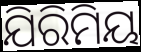
ଯିରିମିୟ